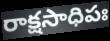
రాక్షసాధిపః